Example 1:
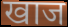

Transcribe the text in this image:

खाज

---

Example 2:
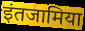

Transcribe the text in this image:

इंतजामिया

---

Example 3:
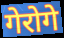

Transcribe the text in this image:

गेरोगे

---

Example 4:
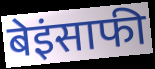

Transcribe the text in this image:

बेइंसाफी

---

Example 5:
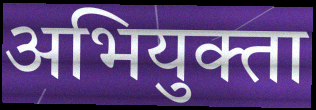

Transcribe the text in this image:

अभियुक्ता